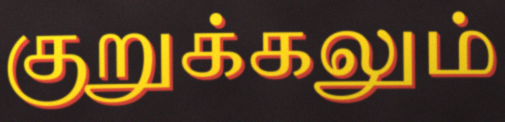
குறுக்கலும்